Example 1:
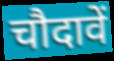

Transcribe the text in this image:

चौदावें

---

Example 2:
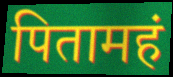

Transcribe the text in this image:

पितामहं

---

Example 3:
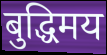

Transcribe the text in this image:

बुद्धिमय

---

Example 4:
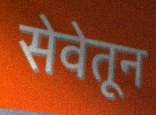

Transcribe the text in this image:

सेवेतून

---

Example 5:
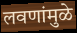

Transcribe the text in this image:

लवणांमुळे